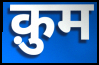
क़ुम